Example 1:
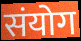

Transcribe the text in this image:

संयोग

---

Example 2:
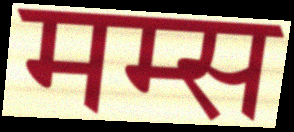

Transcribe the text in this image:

मम्स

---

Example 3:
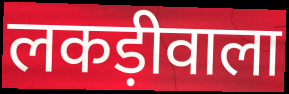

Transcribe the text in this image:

लकड़ीवाला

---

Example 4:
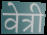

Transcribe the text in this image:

वेत्री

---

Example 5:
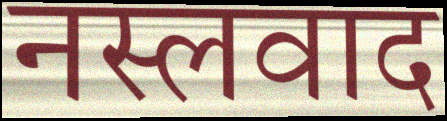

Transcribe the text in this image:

नस्लवाद